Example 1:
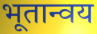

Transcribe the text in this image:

भूतान्वय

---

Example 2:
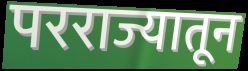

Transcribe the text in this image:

परराज्यातून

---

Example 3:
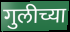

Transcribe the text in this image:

गुलीच्या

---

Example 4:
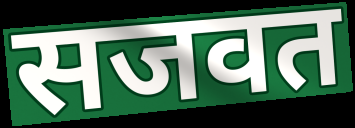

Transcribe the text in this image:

सजवत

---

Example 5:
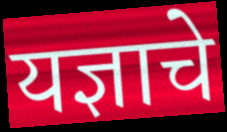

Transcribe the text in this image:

यज्ञाचे